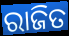
ରାଜିତ